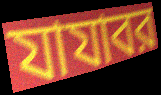
যাযাবর